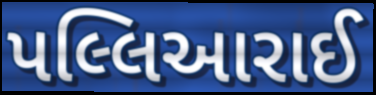
પલ્લિઆરાઈ